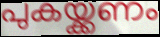
പുകയ്ക്കണം